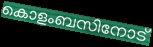
കൊളംബസിനോട്